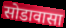
सोडावासा